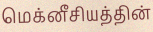
மெக்னீசியத்தின்